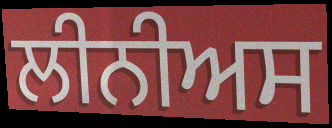
ਲੀਨੀਅਸ